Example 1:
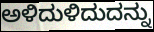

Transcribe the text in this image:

ಅಳಿದುಳಿದುದನ್ನು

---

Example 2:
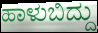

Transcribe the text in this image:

ಹಾಳುಬಿದ್ದು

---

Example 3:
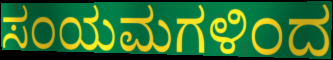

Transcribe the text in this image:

ಸಂಯಮಗಳಿಂದ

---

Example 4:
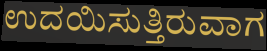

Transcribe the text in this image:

ಉದಯಿಸುತ್ತಿರುವಾಗ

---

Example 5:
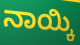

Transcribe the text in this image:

ನಾಯ್ಕಿ